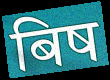
बिष